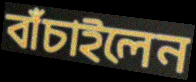
বাঁচাইলেন